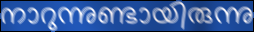
നാറുന്നുണ്ടായിരുന്നു